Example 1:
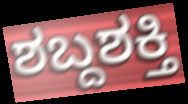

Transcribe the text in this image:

ಶಬ್ದಶಕ್ತಿ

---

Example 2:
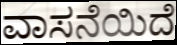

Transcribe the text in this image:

ವಾಸನೆಯಿದೆ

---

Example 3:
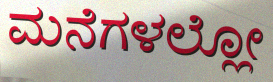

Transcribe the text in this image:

ಮನೆಗಳಲ್ಲೋ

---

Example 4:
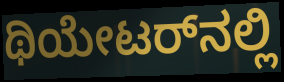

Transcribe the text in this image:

ಥಿಯೇಟರ್‌ನಲ್ಲಿ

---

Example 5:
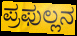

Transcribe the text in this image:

ಪ್ರಫುಲ್ಲನ